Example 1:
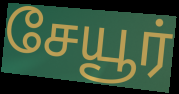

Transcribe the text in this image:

சேயூர்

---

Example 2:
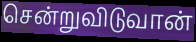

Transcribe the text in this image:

சென்றுவிடுவான்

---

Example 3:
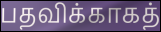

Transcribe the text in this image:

பதவிக்காகத்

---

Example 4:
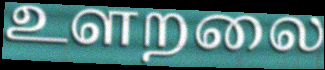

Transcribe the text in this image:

உளறலை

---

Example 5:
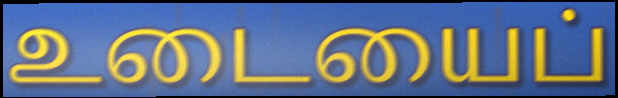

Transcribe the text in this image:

உடையைப்